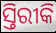
ସ୍ତିରୀକି